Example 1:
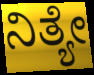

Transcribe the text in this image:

ನಿತ್ಯೇ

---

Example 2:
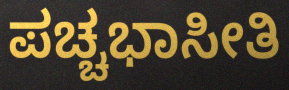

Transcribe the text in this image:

ಪಚ್ಚಭಾಸೀತಿ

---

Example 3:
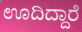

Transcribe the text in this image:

ಊದಿದ್ದಾರೆ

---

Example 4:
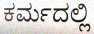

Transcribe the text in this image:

ಕರ್ಮದಲ್ಲಿ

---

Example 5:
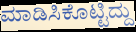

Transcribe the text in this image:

ಮಾಡಿಸಿಕೊಟ್ಟಿದ್ದು